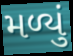
મળ્યું